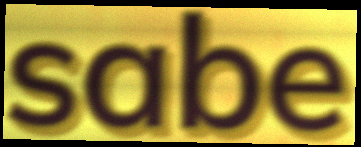
sabe